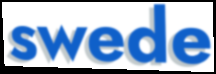
swede